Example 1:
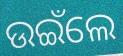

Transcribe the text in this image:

ଉଇଁଲେ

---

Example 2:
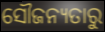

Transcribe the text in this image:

ସୌଜନ୍ୟତାରୁ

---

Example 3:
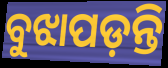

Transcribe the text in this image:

ବୁଝାପଡ଼ନ୍ତି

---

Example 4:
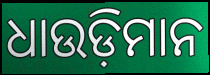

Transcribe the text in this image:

ଧାଉଡ଼ିମାନ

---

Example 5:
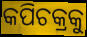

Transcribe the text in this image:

କପିଚକ୍ରକୁ